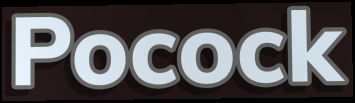
Pocock